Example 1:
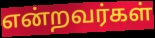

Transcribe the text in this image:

என்றவர்கள்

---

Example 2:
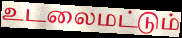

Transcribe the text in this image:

உடலைமட்டும்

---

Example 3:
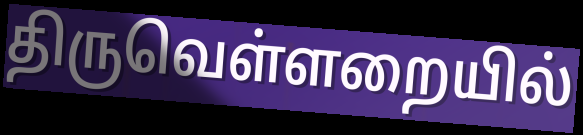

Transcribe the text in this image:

திருவெள்ளறையில்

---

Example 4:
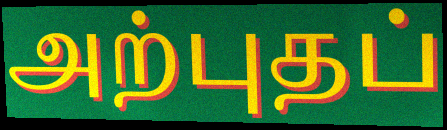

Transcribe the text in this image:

அற்புதப்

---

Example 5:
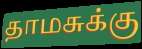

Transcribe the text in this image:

தாமசுக்கு